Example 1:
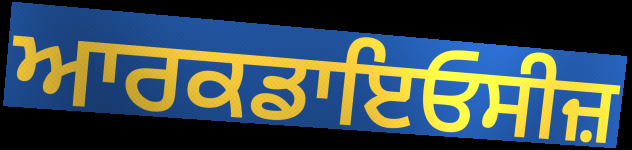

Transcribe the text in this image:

ਆਰਕਡਾਇਓਸੀਜ਼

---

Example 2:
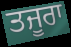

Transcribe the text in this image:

ਤਜੂਰਾ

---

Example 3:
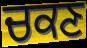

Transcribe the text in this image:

ਚਕਣ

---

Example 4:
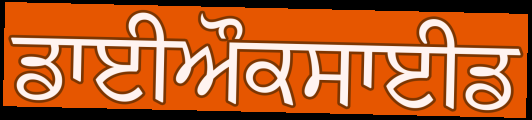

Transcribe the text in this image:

ਡਾਈਔਕਸਾਈਡ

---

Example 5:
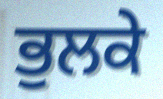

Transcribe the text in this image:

ਭੁਲਕੇ